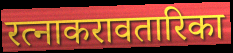
रत्नाकरावतारिका